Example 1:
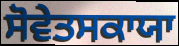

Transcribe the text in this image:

ਸੋਵੇਤਸਕਾਯਾ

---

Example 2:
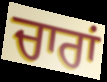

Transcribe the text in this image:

ਚਾਰਾਂ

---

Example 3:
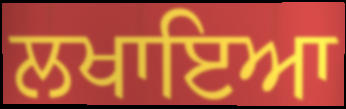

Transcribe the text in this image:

ਲਖਾਇਆ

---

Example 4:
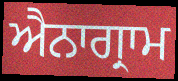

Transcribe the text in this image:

ਐਨਾਗ੍ਰਾਮ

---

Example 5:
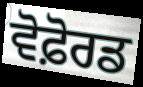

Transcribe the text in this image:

ਵੋਫ਼ੋਰਡ